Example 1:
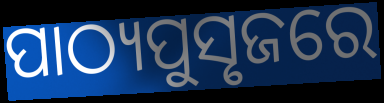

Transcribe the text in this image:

ପାଠ୍ୟପୁସୃଜରେ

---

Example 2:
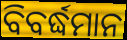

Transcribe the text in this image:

ବିବର୍ଦ୍ଧମାନ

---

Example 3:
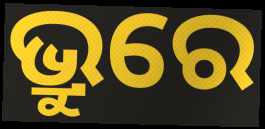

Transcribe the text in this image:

ଭ୍ରୁରେ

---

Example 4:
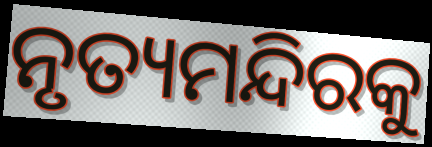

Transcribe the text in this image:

ନୃତ୍ୟମନ୍ଦିରକୁ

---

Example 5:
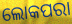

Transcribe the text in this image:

ଲୋକପରା